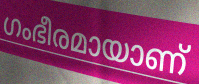
ഗംഭീരമായാണ്